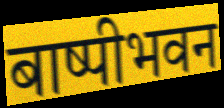
बाष्पीभवन